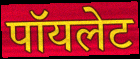
पॉयलेट